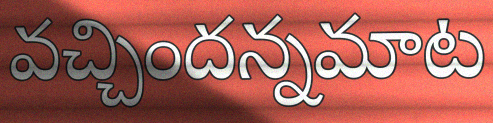
వచ్చిందన్నమాట